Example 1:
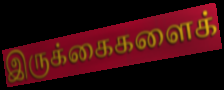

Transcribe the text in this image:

இருக்கைகளைக்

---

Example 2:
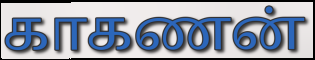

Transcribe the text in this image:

காகணன்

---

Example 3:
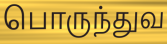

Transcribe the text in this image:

பொருந்துவ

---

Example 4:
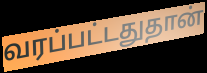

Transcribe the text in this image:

வரப்பட்டதுதான்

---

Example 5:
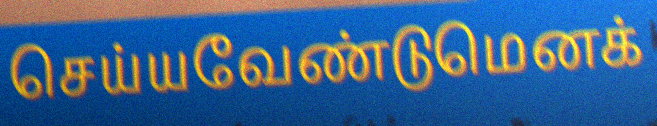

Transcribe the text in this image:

செய்யவேண்டுமெனக்